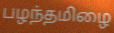
பழந்தமிழை